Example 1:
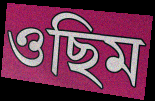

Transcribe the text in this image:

ওছিম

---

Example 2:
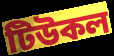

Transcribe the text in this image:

টিউকল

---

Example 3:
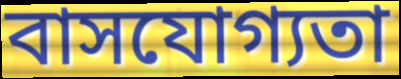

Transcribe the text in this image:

বাসযোগ্যতা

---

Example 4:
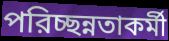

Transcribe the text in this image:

পরিচ্ছন্নতাকর্মী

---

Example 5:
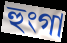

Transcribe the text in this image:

হুংগা